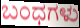
ಬಂಧಗಳು